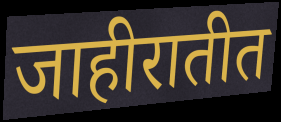
जाहीरातीत